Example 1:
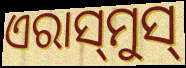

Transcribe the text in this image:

ଏରାସ୍‍ମୁସ୍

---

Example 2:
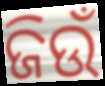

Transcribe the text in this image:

ଜିଉଁ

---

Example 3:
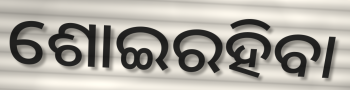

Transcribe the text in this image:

ଶୋଇରହିବା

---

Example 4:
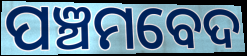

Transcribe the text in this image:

ପଞ୍ଚମବେଦ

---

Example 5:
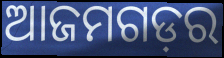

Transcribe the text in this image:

ଆଜମଗଡ଼ର